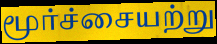
மூர்ச்சையற்று